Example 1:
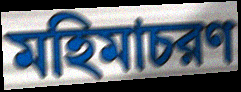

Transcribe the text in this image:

মহিমাচরণ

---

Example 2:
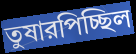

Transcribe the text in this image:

তুষারপিচ্ছিল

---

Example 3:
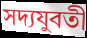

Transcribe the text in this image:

সদ্যযুবতী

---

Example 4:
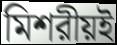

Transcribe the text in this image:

মিশরীয়ই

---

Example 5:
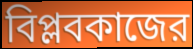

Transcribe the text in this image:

বিপ্লবকাজের